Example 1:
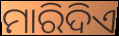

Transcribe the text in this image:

ମାରିଦିଏ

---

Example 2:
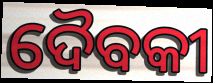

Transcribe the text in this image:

ଦୈବକୀ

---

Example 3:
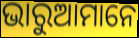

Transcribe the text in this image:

ଭାରୁଆମାନେ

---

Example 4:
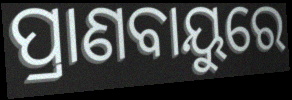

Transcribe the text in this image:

ପ୍ରାଣବାୟୁରେ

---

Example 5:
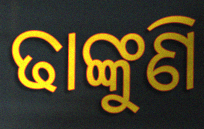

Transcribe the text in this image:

ଢାଙ୍କୁଣି